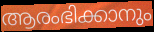
ആരംഭിക്കാനും